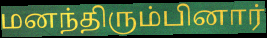
மனந்திரும்பினார்